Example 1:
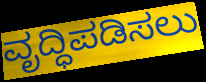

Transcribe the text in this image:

ವೃದ್ಧಿಪಡಿಸಲು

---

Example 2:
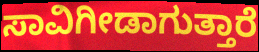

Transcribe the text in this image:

ಸಾವಿಗೀಡಾಗುತ್ತಾರೆ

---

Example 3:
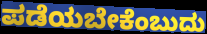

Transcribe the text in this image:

ಪಡೆಯಬೇಕೆಂಬುದು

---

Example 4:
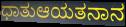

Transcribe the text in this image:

ಧಾತುಆಯತನಾನ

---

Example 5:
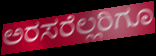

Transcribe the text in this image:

ಅರಸರೆಲ್ಲರಿಗೂ